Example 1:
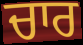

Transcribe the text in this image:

ਚਾਰ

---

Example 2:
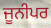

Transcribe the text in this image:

ਜੂਨੀਪਰ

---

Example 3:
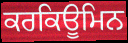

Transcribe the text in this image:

ਕਰਕਿਊਮਿਨ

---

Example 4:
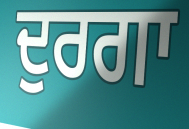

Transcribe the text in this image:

ਦੁਰਗਾ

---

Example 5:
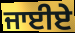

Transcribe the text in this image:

ਜਾਈਏ